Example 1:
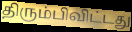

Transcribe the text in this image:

திரும்பிவிட்டது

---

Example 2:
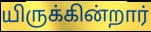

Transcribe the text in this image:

யிருக்கின்றார்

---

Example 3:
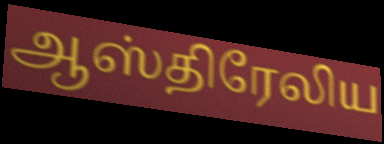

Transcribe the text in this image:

ஆஸ்திரேலிய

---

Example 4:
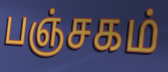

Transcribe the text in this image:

பஞ்சகம்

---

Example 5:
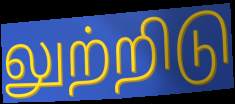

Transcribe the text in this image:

லுற்றிடு